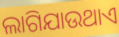
ଲାଗିଯାଉଥାଏ